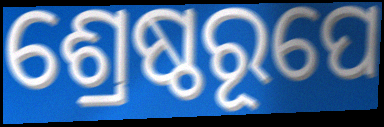
ଶ୍ରେଷ୍ଠରୂପେ